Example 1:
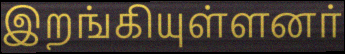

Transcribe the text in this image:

இறங்கியுள்ளனர்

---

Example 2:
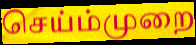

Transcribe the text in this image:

செய்ம்முறை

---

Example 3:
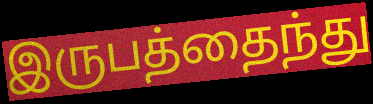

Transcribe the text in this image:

இருபத்தைந்து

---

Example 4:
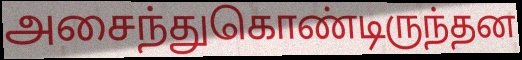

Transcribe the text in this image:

அசைந்துகொண்டிருந்தன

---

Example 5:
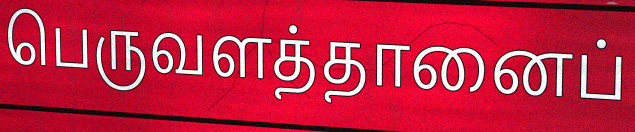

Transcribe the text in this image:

பெருவளத்தானைப்